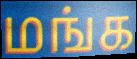
மங்க